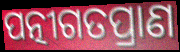
ପତ୍ନୀଗତପ୍ରାଣ